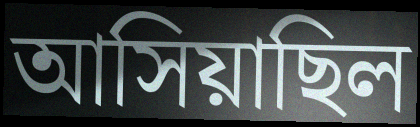
আসিয়াছিল